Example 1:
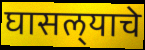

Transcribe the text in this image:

घासल्याचे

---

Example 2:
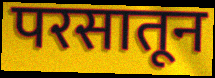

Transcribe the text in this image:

परसातून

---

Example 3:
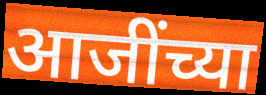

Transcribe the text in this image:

आजींच्या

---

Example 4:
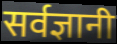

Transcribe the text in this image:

सर्वज्ञानी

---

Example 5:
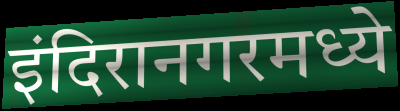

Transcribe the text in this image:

इंदिरानगरमध्ये